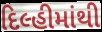
દિલ્હીમાંથી